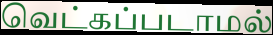
வெட்கப்படாமல்